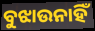
ବୁଝାଉନାହିଁ